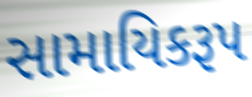
સામાયિકરૂપ